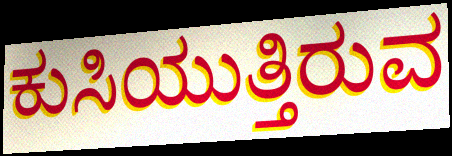
ಕುಸಿಯುತ್ತಿರುವ